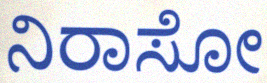
ನಿರಾಸೋ